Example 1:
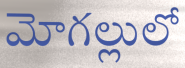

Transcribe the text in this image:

మోగల్లులో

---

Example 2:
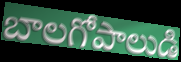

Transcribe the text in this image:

బాలగోపాలుడి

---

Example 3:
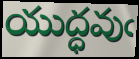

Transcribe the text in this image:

యుద్ధవుఁ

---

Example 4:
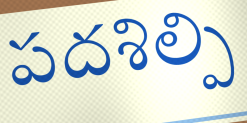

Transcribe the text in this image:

పదశిల్పి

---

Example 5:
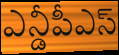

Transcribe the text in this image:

ఎన్డీపీఎస్